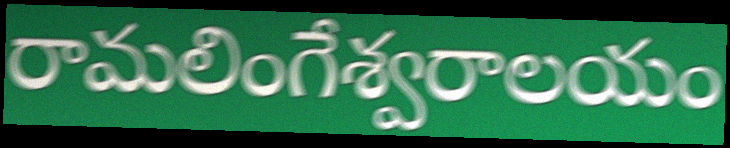
రామలింగేశ్వరాలయం